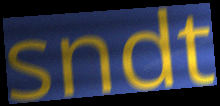
sndt